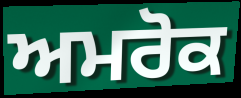
ਅਮਰੋਕ